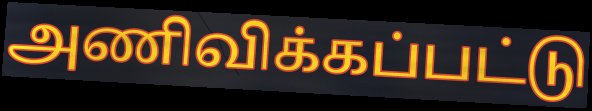
அணிவிக்கப்பட்டு